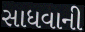
સાધવાની